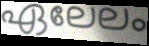
ഏലേലം